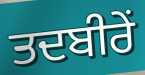
ਤਦਬੀਰੇਂ